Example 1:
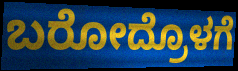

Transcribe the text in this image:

ಬರೋದ್ರೊಳಗೆ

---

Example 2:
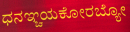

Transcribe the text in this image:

ಧನಞ್ಚಯಕೋರಬ್ಯೋ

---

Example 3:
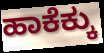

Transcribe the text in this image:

ಹಾಕೆಕ್ಕು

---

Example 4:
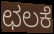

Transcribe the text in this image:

ಛಲಕೆ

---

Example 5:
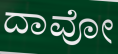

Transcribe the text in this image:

ದಾವೋ